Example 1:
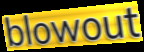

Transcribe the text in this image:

blowout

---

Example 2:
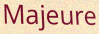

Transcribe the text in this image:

Majeure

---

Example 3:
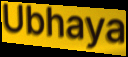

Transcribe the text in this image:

Ubhaya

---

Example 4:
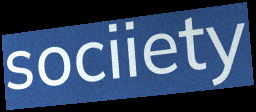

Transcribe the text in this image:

sociiety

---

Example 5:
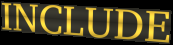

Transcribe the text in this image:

INCLUDE